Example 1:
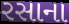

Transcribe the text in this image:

રસાના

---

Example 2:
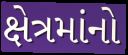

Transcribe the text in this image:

ક્ષેત્રમાંનો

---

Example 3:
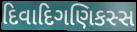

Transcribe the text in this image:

દિવાદિગણિકસ્સ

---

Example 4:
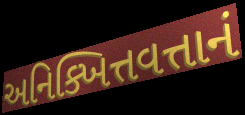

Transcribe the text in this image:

અનિક્ખિત્તવત્તાનં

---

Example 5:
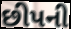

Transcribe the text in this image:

છીપની